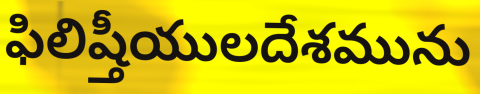
ఫిలిష్తీయులదేశమును